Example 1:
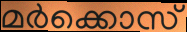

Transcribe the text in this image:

മർക്കൊസ്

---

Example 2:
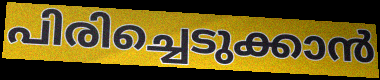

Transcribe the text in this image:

പിരിച്ചെടുക്കാൻ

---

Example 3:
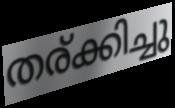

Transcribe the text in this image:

തര്ക്കിച്ചു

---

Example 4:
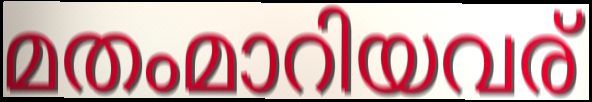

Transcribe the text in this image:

മതംമാറിയവര്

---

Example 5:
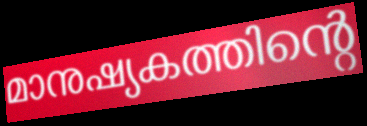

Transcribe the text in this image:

മാനുഷ്യകത്തിന്റെ